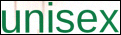
unisex